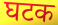
घटक